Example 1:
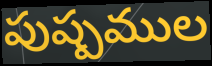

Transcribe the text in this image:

పుష్పముల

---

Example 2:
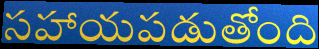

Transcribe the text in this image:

సహాయపడుతోంది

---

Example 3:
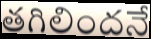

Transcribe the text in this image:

తగిలిందనే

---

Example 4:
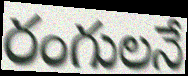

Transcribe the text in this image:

రంగులనే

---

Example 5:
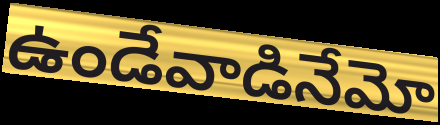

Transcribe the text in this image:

ఉండేవాడినేమో